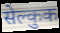
सेल्कुक